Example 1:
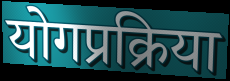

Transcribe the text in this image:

योगप्रक्रिया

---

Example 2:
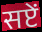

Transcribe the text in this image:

सप्टें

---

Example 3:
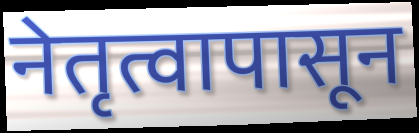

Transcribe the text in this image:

नेतृत्वापासून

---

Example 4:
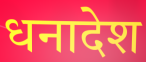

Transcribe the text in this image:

धनादेश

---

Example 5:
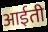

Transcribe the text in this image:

आईती